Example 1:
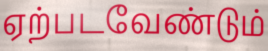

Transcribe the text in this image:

ஏற்படவேண்டும்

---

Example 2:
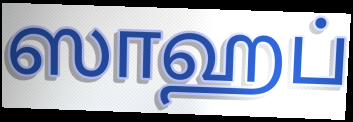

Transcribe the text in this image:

ஸாஹப்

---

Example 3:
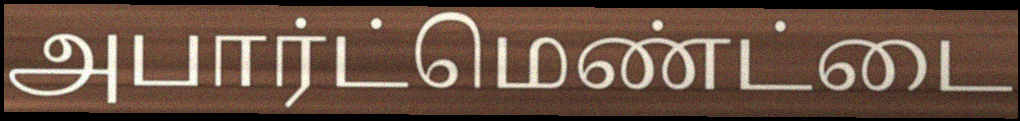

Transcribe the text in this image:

அபார்ட்மெண்ட்டை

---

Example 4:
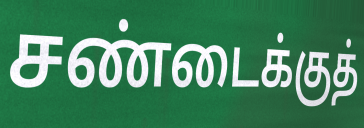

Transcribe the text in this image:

சண்டைக்குத்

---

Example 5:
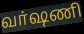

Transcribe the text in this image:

வர்ஷணி